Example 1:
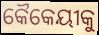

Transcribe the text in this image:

କୈକେୟୀକୁ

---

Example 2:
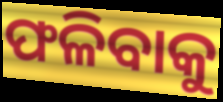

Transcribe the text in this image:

ଫଳିବାକୁ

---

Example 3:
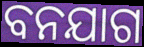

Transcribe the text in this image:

ବନଯାଗ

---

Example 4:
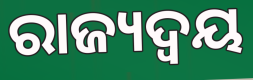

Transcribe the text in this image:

ରାଜ୍ୟଦ୍ୱୟ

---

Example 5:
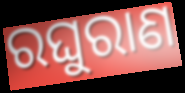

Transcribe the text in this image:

ରଘୁରାଣ